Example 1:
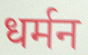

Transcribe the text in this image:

धर्मन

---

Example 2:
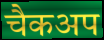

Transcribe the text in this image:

चैकअप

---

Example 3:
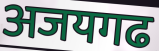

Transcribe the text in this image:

अजयगढ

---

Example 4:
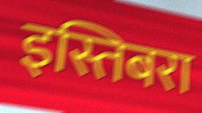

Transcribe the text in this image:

इस्तिबरा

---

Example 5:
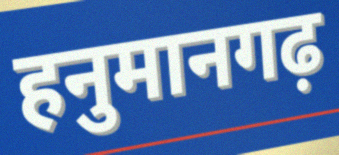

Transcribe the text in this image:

हनुमानगढ़